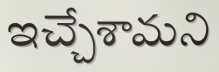
ఇచ్చేశామని